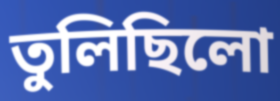
তুলিছিলো